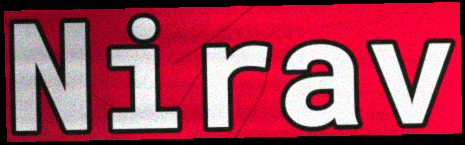
Nirav